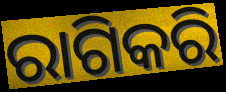
ରାଗିକରି